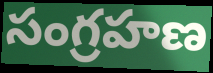
సంగ్రహణ